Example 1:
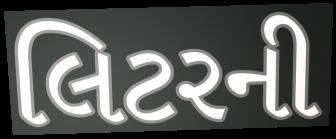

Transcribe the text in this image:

લિટરની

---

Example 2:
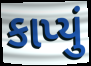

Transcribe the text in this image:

કાપ્યું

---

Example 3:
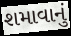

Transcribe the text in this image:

શમાવાનું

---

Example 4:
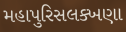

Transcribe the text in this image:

મહાપુરિસલક્ખણા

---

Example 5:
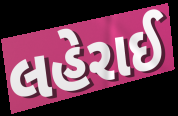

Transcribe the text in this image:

લહેરાઈ